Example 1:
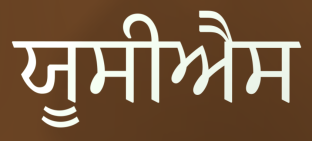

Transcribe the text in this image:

ਯੂਸੀਐਸ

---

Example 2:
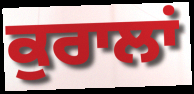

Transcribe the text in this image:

ਕੁਰਾਲਾਂ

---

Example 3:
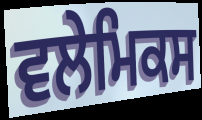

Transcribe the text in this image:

ਵਲੇਮਿਕਸ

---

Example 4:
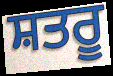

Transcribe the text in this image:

ਸ਼ਤਰੂ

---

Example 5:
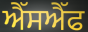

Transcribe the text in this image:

ਐੱਸਐੱਫ